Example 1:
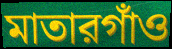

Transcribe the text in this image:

মাতারগাঁও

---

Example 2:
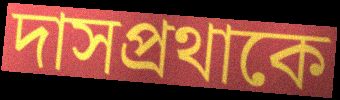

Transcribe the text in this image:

দাসপ্রথাকে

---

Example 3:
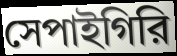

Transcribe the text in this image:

সেপাইগিরি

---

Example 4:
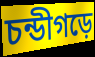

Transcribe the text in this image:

চন্ডীগড়ে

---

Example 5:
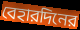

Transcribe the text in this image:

বেহারদিনের